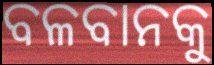
ବଳବାନକୁ